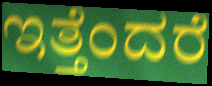
ಇತ್ತೆಂದರೆ